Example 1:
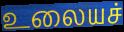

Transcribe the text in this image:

உலையச்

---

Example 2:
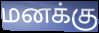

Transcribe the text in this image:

மனக்கு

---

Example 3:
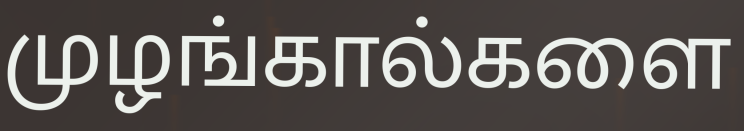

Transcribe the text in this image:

முழங்கால்களை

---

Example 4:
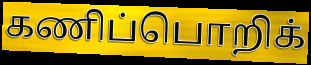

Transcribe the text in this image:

கணிப்பொறிக்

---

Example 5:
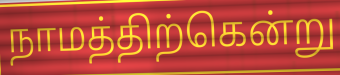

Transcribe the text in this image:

நாமத்திற்கென்று